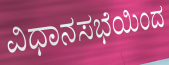
ವಿಧಾನಸಭೆಯಿಂದ